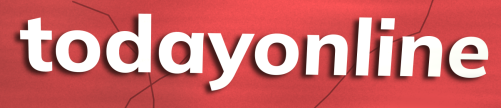
todayonline